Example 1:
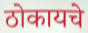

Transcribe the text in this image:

ठोकायचे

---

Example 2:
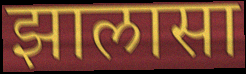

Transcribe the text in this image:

झालासा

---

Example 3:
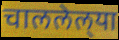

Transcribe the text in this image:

चाललेल्या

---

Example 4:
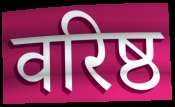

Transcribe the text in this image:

वरिष्ठ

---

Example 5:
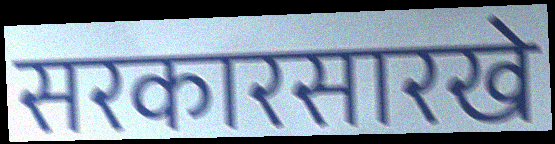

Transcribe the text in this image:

सरकारसारखे